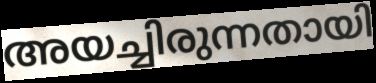
അയച്ചിരുന്നതായി